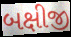
બક્ષીજી